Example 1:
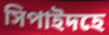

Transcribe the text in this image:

সিপাইদহে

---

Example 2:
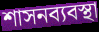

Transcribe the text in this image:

শাসনব্যবস্থা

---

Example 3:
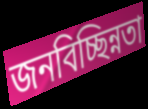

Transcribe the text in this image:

জনবিচ্ছিন্নতা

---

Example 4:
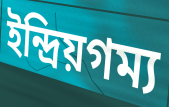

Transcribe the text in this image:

ইন্দ্রিয়গম্য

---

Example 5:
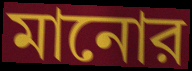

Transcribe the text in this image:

মানোর